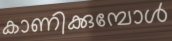
കാണിക്കുമ്പോൾ